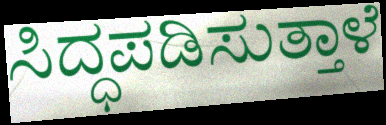
ಸಿದ್ಧಪಡಿಸುತ್ತಾಳೆ